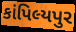
કાંપિલ્યપુર